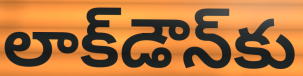
లాక్‌డౌన్‌కు